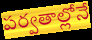
పర్వతాల్లోనే